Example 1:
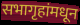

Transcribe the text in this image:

सभागृहांमधून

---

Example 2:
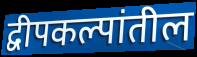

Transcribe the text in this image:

द्वीपकल्पांतील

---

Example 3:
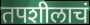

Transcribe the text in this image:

तपशीलाचं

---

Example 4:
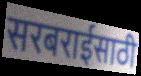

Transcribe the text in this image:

सरबराईसाठी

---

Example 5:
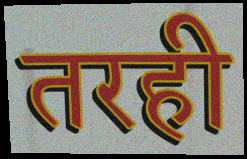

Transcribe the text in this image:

तरही